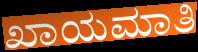
ಖಾಯಮಾತಿ